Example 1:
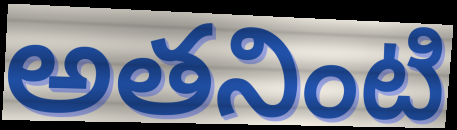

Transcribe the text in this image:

అతనింటి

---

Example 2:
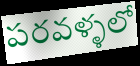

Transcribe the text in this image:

పరవళ్ళలో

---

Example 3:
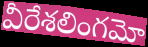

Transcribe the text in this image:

వీరేశలింగమో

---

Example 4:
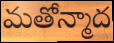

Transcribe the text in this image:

మతోన్మాద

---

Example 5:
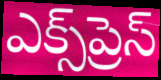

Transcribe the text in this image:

ఎక్స్‌ప్రెస్